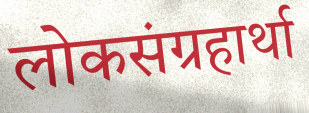
लोकसंग्रहार्था